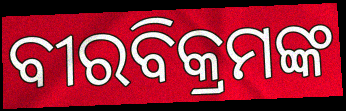
ବୀରବିକ୍ରମଙ୍କ